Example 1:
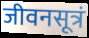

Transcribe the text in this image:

जीवनसूत्रं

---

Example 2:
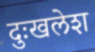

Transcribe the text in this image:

दुःखलेश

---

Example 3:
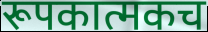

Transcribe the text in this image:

रूपकात्मकच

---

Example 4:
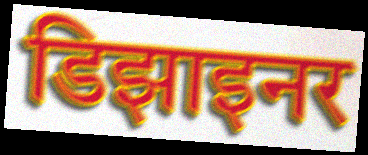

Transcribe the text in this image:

डिझाइनर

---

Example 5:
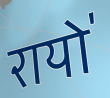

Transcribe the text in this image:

रायो॑